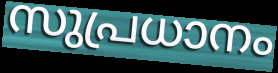
സുപ്രധാനം